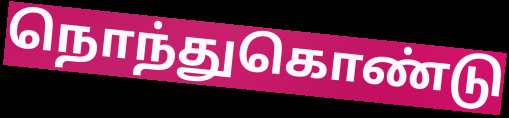
நொந்துகொண்டு